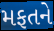
મફતને